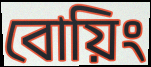
বোয়িং